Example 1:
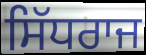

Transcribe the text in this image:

ਸਿੱਧਰਾਜ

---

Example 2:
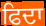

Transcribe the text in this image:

ਫਿਦਾ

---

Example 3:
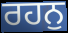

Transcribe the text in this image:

ਰਹਨੁ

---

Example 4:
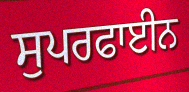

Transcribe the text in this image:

ਸੁਪਰਫਾਈਨ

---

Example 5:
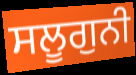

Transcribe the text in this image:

ਸਲੂਗੁਨੀ